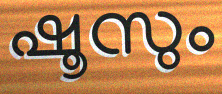
ഷൂസും